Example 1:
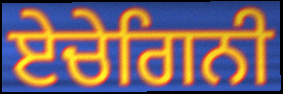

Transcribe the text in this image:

ਏਚੇਗਿਨੀ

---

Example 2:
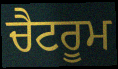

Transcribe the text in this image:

ਚੈਟਰੂਮ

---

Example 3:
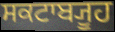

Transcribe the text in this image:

ਸਕਟਾਬ੍ਯੂਹ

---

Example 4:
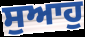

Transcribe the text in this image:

ਸੁਆਹੁ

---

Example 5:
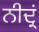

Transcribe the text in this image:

ਨੀਦ੍ਰਂ